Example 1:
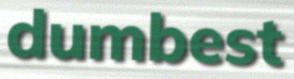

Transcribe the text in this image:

dumbest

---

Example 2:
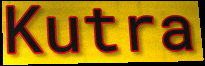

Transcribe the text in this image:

Kutra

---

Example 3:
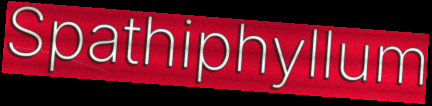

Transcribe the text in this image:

Spathiphyllum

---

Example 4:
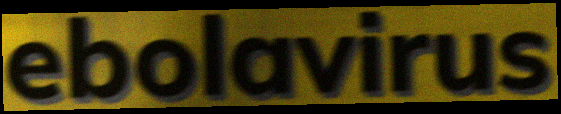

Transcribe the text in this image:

ebolavirus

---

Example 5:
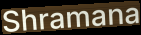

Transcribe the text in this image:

Shramana